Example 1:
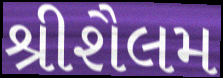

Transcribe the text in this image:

શ્રીશૈલમ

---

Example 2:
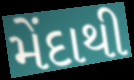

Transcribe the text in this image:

મેંદાથી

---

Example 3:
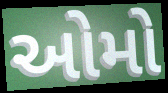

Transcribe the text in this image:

ઓમો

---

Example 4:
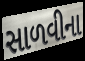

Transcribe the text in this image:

સાળવીના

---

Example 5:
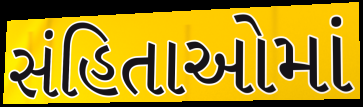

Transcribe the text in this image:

સંહિતાઓમાં